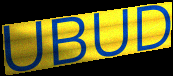
UBUD